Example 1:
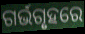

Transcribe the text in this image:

ଗର୍ଭଗୃହରେ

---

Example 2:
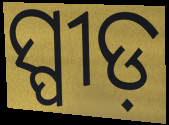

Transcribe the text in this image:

ସ୍ପୀଡ଼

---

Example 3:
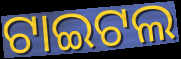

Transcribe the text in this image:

ଟାଇଟଲ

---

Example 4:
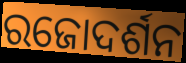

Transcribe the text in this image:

ରଜୋଦର୍ଶନ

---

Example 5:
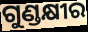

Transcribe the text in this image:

ଗୁଣ୍ଡକ୍ଷୀର